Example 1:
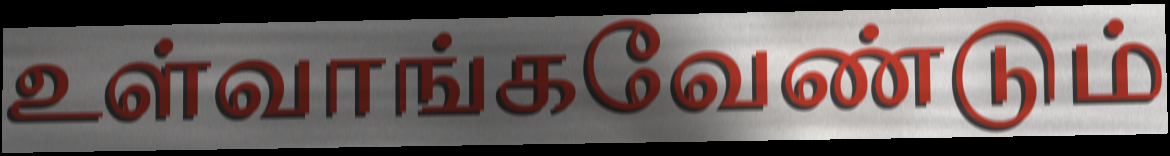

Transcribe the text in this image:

உள்வாங்கவேண்டும்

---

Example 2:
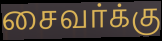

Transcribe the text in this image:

சைவர்க்கு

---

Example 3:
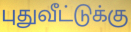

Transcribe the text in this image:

புதுவீட்டுக்கு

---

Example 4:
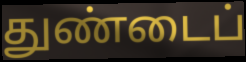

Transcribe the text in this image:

துண்டைப்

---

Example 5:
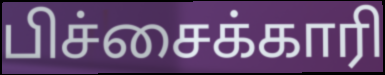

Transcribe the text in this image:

பிச்சைக்காரி